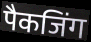
पैकजिंग